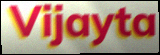
Vijayta